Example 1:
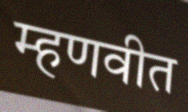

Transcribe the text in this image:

म्हणवीत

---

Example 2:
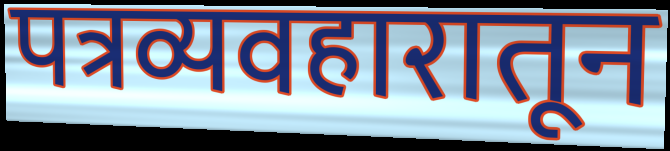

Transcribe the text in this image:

पत्रव्यवहारातून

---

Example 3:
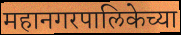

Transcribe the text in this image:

महानगरपालिकेच्या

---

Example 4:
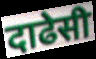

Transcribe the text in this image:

दाढेसी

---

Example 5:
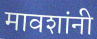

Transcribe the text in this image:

मावशांनी